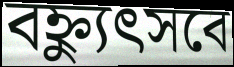
বহ্ন্যুৎসবে